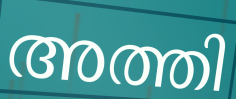
അത്തി